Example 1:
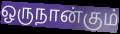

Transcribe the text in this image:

ஒருநான்கும்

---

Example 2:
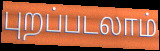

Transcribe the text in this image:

புறப்படலாம்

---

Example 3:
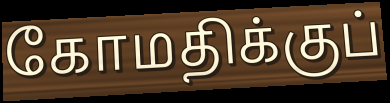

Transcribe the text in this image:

கோமதிக்குப்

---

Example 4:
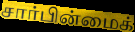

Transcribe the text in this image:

சார்பின்மைக்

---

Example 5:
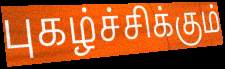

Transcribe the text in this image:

புகழ்ச்சிக்கும்